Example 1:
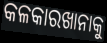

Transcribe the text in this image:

କଳକାରଖାନାକୁ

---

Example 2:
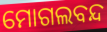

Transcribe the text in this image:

ମୋଗଲବନ୍ଦ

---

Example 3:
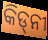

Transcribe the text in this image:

କିଡ୍‍ନୀ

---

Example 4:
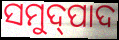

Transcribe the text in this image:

ସମୁଦ୍‌ପାଦ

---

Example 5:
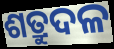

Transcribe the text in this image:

ଶତ୍ରୁଦଳ